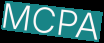
MCPA